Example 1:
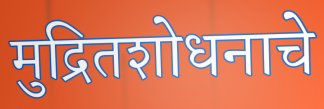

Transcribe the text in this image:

मुद्रितशोधनाचे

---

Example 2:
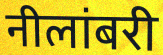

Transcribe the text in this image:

नीलांबरी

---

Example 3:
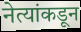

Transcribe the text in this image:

नेत्यांकडून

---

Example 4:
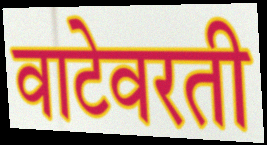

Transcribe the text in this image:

वाटेवरती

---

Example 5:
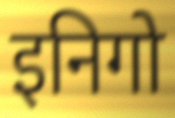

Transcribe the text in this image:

इनिगो